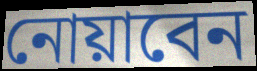
নোয়াবেন